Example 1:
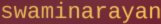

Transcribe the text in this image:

swaminarayan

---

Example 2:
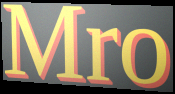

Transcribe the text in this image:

Mro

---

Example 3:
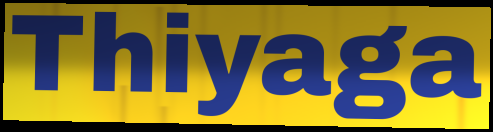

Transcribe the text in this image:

Thiyaga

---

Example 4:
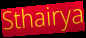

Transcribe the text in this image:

Sthairya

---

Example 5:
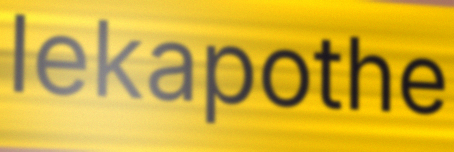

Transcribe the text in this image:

lekapothe